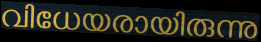
വിധേയരായിരുന്നു